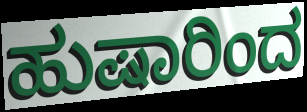
ಹುಷಾರಿಂದ